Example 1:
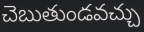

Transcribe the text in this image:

చెబుతుండవచ్చు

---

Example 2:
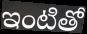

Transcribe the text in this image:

ఇంటితో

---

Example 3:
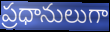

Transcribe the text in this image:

ప్రధానులుగా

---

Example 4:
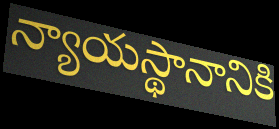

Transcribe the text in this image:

న్యాయస్థానానికి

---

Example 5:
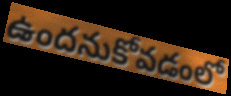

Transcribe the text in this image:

ఉందనుకోవడంలో